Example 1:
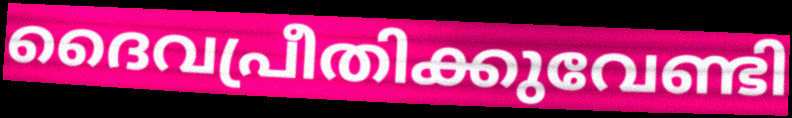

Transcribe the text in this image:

ദൈവപ്രീതിക്കുവേണ്ടി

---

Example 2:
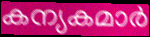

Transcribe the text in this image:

കന്യകമാർ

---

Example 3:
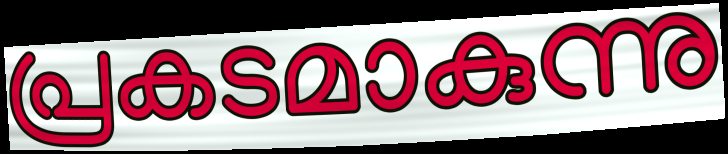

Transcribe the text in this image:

പ്രകടമാകുന്നു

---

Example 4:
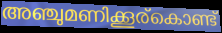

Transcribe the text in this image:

അഞ്ചുമണിക്കൂര്കൊണ്ട്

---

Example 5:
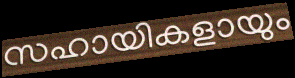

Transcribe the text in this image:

സഹായികളായും